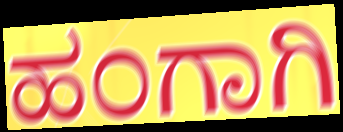
ಹಂಗಾಗಿ